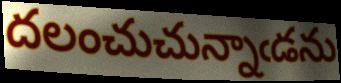
దలంచుచున్నాఁడను